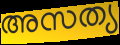
അസത്യ